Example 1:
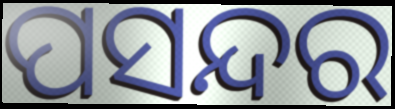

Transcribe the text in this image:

ପସନ୍ଦର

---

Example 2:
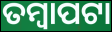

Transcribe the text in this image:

ତମ୍ବାପଟା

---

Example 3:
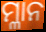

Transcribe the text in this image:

ମ୍ଳାନ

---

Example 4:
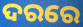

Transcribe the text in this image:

ଦରରେ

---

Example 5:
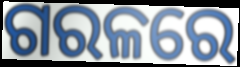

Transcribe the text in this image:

ଗରଳରେ